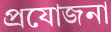
প্রযোজনা